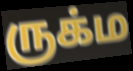
ருக்ம